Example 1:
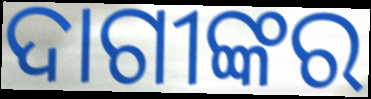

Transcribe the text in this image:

ଦାଗୀଙ୍କର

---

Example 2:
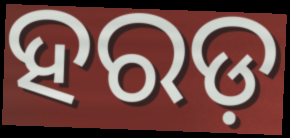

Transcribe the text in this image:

ହରଡ଼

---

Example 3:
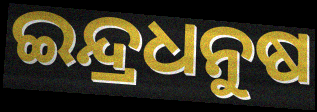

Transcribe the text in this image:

ଇନ୍ଦ୍ରଧନୁଷ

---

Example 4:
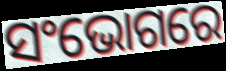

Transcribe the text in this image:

ସଂଭୋଗରେ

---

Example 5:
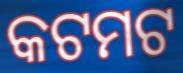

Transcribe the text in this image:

କଟମଟ